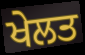
ਖੇਲਤ